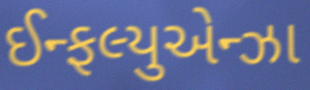
ઈન્ફલ્યુએન્ઝા